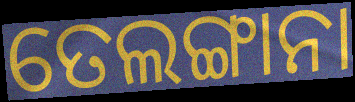
ତେଲଙ୍ଗାନା